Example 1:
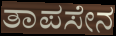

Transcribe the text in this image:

ತಾಪಸೇನ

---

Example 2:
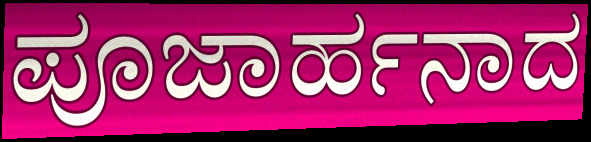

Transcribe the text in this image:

ಪೂಜಾರ್ಹನಾದ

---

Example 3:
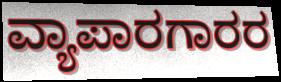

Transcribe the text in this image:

ವ್ಯಾಪಾರಗಾರರ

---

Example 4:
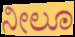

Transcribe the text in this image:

ನೀಲೂ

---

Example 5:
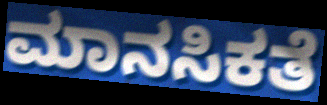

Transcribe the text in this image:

ಮಾನಸಿಕತೆ